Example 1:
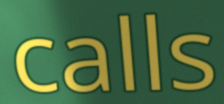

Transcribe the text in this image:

calls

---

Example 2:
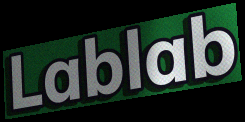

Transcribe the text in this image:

Lablab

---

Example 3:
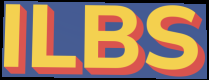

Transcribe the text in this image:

ILBS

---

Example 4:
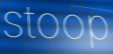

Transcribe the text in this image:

stoop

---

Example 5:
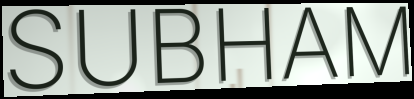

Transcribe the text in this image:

SUBHAM